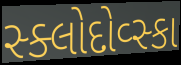
સ્ક્લોદોવ્સ્કા